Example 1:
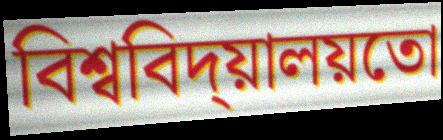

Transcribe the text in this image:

বিশ্ববিদ্য়ালয়তো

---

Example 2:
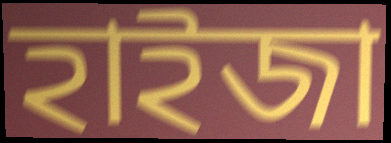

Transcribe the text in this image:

হাইজা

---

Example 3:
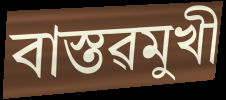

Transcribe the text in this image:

বাস্তৱমুখী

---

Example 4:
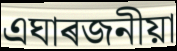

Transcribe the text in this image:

এঘাৰজনীয়া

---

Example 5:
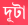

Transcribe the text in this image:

দূটা